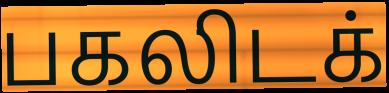
பகலிடக்